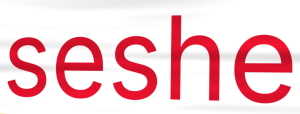
seshe